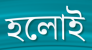
হলোই